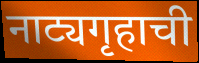
नाट्यगृहाची